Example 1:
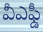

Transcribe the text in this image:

వీఎఫ్డీ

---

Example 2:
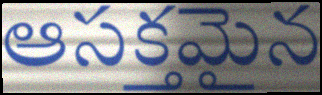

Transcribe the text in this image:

ఆసక్తమైన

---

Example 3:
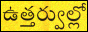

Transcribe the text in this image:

ఉత్తర్వుల్లో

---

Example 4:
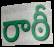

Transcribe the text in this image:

రాఠీ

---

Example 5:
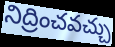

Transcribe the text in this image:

నిద్రించవచ్చు